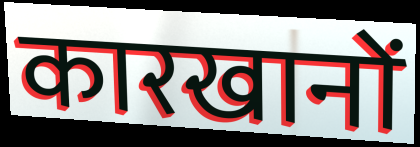
कारखानों